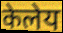
केलेय